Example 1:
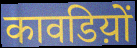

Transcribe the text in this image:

कावडिय़ों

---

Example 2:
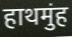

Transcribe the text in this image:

हाथमुंह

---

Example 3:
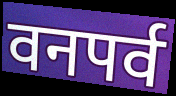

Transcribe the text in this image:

वनपर्व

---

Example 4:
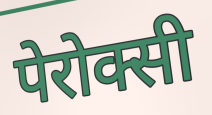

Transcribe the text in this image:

पेरोक्सी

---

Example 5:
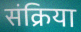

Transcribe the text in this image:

संक्रिया